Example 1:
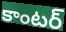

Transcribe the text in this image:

కాంటర్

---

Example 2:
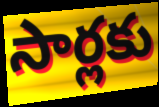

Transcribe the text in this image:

సార్లకు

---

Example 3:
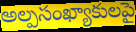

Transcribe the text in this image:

అల్పసంఖ్యాకులపై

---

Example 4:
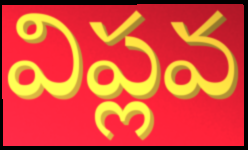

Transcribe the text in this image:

విప్లవ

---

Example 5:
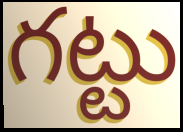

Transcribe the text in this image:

గట్టు